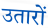
उतारों